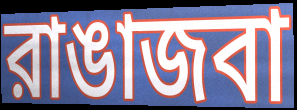
রাঙাজবা